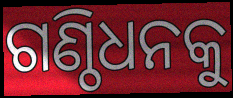
ଗଣ୍ଠିଧନକୁ